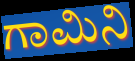
ಗಾಮಿನಿ